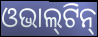
ଓଭାଲ୍‍ଟିନ୍